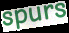
spurs